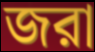
জরা